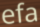
efa